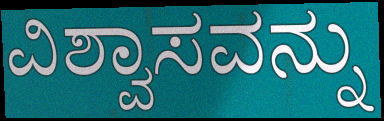
ವಿಶ್ವಾಸವನ್ನು